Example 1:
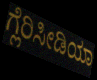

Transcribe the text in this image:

ಗ್ಲೆರಿಸೀಡಿಯಾ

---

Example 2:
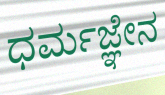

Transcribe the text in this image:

ಧರ್ಮಜ್ಞೇನ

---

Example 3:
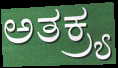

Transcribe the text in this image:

ಅತಕ್ರ್ಯ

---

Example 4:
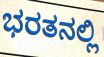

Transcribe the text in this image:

ಭರತನಲ್ಲಿ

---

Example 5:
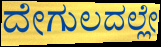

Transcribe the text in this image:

ದೇಗುಲದಲ್ಲೇ